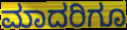
ಮಾದರಿಗೂ